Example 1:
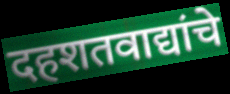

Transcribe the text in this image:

दहशतवाद्यांचे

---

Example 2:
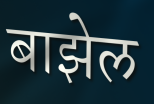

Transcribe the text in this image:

बाझेल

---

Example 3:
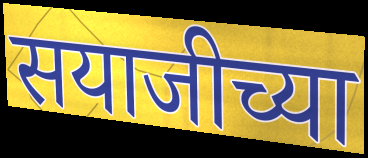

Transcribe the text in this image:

सयाजीच्या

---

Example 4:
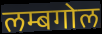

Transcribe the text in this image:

लम्बगोल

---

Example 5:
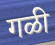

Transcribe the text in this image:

गळी